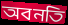
অবনতি